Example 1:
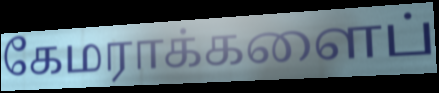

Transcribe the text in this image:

கேமராக்களைப்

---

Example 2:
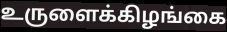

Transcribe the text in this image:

உருளைக்கிழங்கை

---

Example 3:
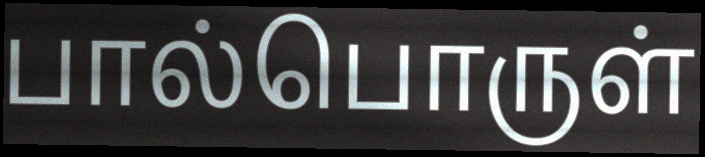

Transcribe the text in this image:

பால்பொருள்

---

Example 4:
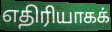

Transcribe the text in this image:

எதிரியாகக்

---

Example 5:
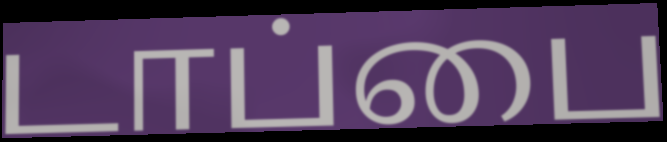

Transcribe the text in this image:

டாப்பை